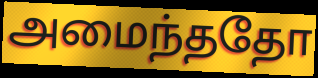
அமைந்ததோ